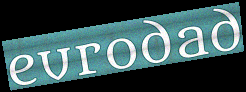
eurodad